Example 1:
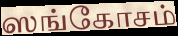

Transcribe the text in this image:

ஸங்கோசம்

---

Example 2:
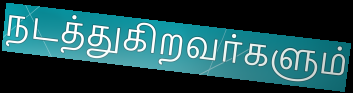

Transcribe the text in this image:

நடத்துகிறவர்களும்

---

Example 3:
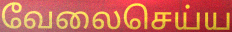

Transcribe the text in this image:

வேலைசெய்ய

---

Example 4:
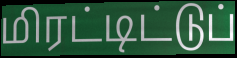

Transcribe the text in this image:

மிரட்டிட்டுப்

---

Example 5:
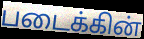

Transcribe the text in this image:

படைக்கின்